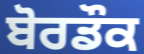
ਬੋਰਡੌਕ